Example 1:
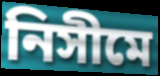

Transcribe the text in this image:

নিসীমে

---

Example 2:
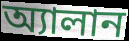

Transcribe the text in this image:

অ্যালান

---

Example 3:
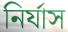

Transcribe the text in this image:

নির্যাস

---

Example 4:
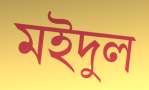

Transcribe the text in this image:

মইদুল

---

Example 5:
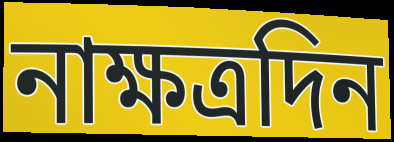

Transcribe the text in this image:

নাক্ষত্রদিন